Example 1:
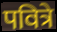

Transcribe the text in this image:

पवित्रे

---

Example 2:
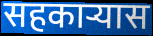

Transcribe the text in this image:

सहकार्‍यास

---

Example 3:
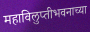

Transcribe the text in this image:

महाविलुप्तीभवनाच्या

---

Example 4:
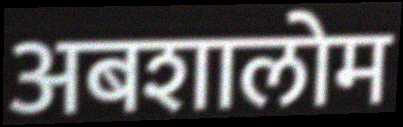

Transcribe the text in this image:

अबशालोम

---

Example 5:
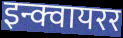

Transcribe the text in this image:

इन्क्वायरर